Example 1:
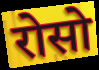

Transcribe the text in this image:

रोसो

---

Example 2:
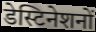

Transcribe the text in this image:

डेस्टिनेशनों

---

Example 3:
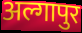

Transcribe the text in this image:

अल्गापुर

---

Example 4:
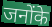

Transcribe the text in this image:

जनोंके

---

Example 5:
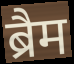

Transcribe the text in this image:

ब्रैम